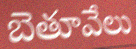
బెతూవేలు